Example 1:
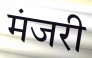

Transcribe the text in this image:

मंजरी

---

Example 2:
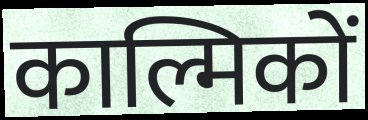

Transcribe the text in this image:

काल्मिकों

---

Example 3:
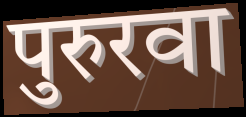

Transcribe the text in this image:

पुरुरवा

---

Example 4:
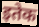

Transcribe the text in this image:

इतेक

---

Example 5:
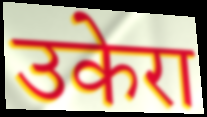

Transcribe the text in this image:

उकेरा